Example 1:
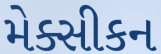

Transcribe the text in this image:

મેક્સીકન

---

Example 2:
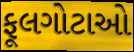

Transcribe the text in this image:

ફૂલગોટાઓ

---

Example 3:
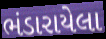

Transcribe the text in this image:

ભંડારાયેલા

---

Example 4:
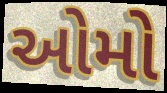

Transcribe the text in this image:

ઓમો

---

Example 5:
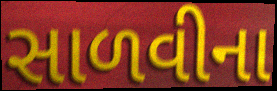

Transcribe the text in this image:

સાળવીના